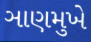
ઞાણમુખે